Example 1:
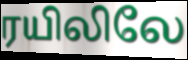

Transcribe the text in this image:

ரயிலிலே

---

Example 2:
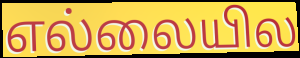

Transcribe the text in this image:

எல்லையில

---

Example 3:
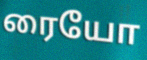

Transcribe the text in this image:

ரையோ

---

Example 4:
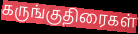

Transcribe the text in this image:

கருங்குதிரைகள்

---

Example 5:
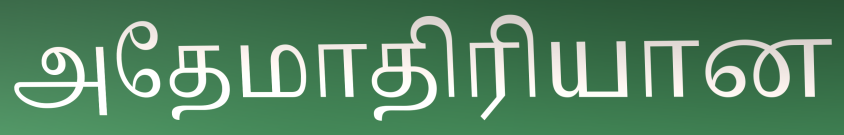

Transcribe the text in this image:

அதேமாதிரியான